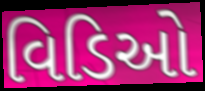
વિડિઓ